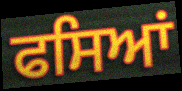
ਫਸਿਆਂ